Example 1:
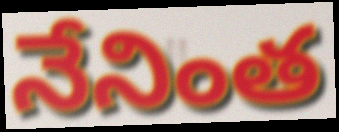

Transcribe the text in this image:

నేనింత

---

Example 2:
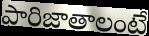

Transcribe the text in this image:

పారిజాతాలంటే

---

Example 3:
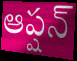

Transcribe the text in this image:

ఆప్షన్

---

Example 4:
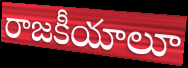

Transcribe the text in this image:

రాజకీయాలూ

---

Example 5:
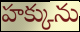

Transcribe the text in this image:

హక్కును